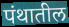
पंथातील